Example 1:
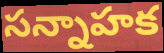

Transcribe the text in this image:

సన్నాహక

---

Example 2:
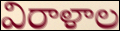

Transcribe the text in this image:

విరాళాల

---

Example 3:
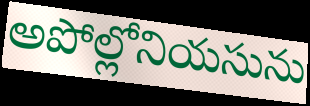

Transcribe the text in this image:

అపోల్లోనియసును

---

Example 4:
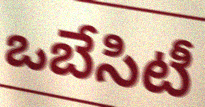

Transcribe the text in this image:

ఒబేసిటీ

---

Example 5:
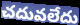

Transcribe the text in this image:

చదువలేదు